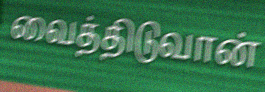
வைத்திடுவான்